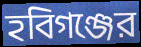
হবিগঞ্জের